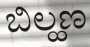
ಬಿಲ್ಹಣ